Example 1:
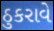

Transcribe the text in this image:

ઠુકરાવે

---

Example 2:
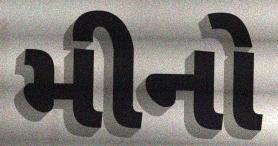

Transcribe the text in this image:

મીનો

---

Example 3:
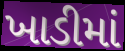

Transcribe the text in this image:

ખાડીમાં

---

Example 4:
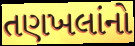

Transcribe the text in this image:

તણખલાંનો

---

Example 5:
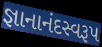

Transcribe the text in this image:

જ્ઞાનાનંદસ્વરૂપ